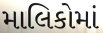
માલિકોમાં